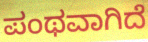
ಪಂಥವಾಗಿದೆ